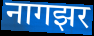
नागझर